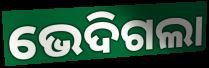
ଭେଦିଗଲା